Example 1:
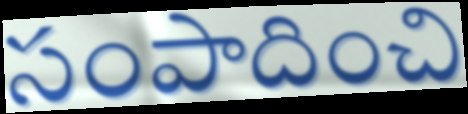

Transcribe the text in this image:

సంపాదించి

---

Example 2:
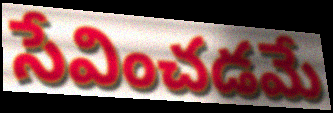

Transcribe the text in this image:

సేవించడమే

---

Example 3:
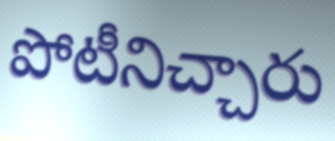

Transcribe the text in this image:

పోటీనిచ్చారు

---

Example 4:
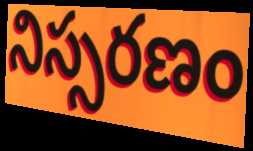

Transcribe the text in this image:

నిస్సరణం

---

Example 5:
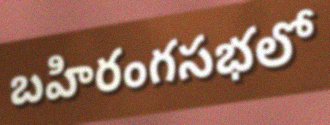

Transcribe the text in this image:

బహిరంగసభలో